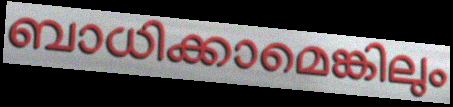
ബാധിക്കാമെങ്കിലും